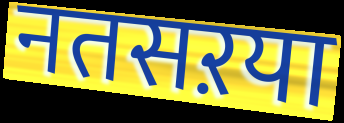
नतसऱया